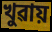
খুৱায়